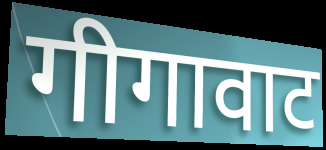
गीगावाट